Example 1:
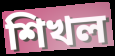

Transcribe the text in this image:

শিখল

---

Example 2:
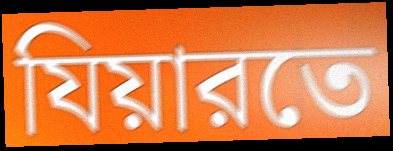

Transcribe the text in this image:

যিয়ারতে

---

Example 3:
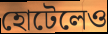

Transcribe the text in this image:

হোটেলেও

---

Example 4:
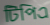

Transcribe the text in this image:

টিপিএ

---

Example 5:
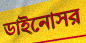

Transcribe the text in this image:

ডাইনোসর